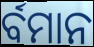
ର୍ବମାନ